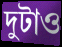
দুটাও